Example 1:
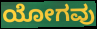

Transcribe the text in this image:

ಯೋಗವು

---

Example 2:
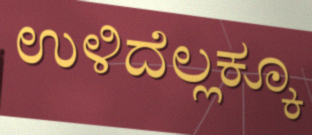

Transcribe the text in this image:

ಉಳಿದೆಲ್ಲಕ್ಕೂ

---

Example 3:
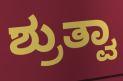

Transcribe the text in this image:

ಶ್ರುತ್ವಾ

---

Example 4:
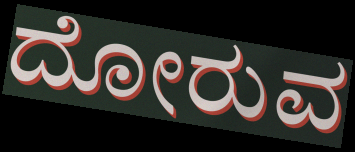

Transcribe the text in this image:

ದೋರುವ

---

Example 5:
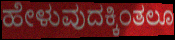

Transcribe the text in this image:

ಹೇಳುವುದಕ್ಕಿಂತಲೂ